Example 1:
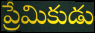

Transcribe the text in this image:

ప్రేమికుడు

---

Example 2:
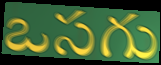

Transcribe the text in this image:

ఒసగు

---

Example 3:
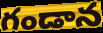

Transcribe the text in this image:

గండాన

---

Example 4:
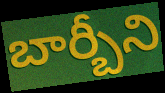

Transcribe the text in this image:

బార్బీని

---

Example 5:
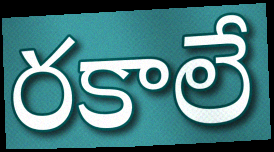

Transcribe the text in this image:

రకాలే